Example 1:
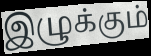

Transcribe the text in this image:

இழுக்கும்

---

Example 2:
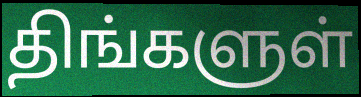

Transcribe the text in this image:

திங்களுள்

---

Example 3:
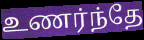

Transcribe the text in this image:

உணர்ந்தே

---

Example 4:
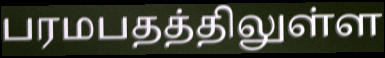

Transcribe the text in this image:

பரமபதத்திலுள்ள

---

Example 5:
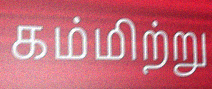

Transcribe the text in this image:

கம்மிற்று